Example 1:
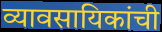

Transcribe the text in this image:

व्यावसायिकांची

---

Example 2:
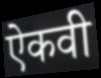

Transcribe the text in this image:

ऐकवी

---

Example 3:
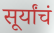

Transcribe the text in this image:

सूर्यांचं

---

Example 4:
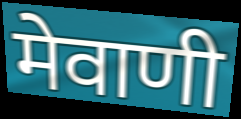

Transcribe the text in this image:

मेवाणी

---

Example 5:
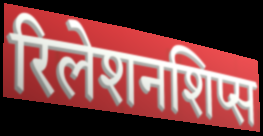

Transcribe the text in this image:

रिलेशनशिप्स